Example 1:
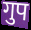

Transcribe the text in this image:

गुप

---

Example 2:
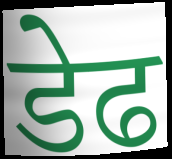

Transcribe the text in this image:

डेढ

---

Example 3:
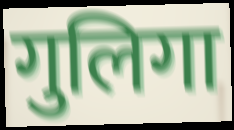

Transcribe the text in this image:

गुलिगा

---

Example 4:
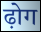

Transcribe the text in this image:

ढ़ोग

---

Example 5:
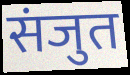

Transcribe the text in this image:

संजुत